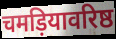
चमड़ियावरिष्ठ